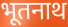
भूतनाथ